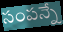
సంపన్నే